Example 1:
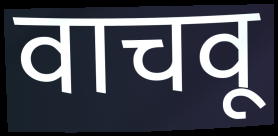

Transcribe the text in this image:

वाचवू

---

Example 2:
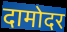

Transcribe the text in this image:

दामोदर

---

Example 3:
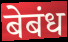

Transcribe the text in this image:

बेबंध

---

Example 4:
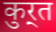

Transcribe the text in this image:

कुर्त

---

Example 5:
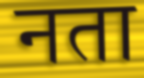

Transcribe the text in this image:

नता